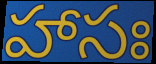
హాసః